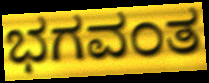
ಭಗವಂತ